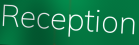
Reception